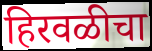
हिरवळीचा